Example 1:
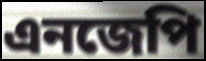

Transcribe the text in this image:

এনজেপি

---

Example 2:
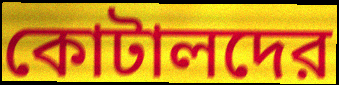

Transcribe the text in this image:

কোটালদের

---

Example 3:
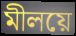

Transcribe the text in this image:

মীলয়ে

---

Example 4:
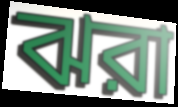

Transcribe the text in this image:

ঝরা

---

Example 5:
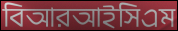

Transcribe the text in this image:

বিআরআইসিএম